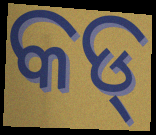
କଡ୍